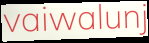
vaiwalunj